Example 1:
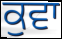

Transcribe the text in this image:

ਕੁਵਾ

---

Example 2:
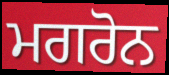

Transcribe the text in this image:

ਮਗਰੋਨ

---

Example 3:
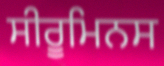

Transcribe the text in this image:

ਸੀਰੂਮਿਨਸ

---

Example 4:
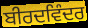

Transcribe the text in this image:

ਬੀਰਦਵਿੰਦਰ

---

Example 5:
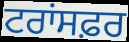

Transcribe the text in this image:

ਟਰਾਂਸਫ਼ਰ